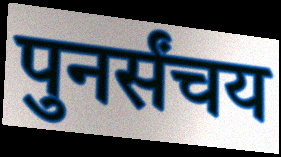
पुनर्संचय